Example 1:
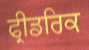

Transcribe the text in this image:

ਫ੍ਰੀਡਰਿਕ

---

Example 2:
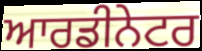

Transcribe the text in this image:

ਆਰਡੀਨੇਟਰ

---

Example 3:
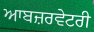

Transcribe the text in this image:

ਆਬਜ਼ਰਵੇਟਰੀ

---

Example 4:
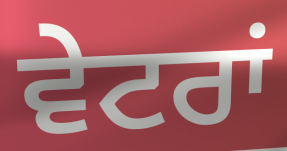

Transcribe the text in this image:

ਵੇਟਰਾਂ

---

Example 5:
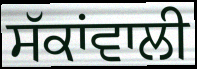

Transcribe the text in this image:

ਸੱਕਾਂਵਾਲੀ